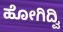
ಹೋಗಿದ್ವಿ